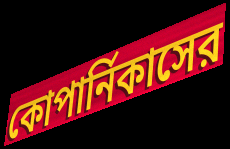
কোপার্নিকাসের